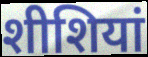
शीशियां